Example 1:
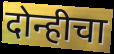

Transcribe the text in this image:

दोन्हीचा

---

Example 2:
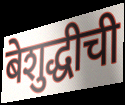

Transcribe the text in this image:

बेशुद्धीची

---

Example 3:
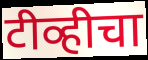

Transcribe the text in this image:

टीव्हीचा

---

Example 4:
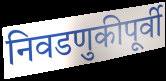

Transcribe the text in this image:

निवडणुकीपूर्वी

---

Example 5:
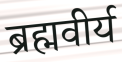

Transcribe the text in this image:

ब्रह्मवीर्य